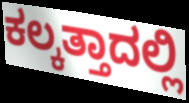
ಕಲ್ಕತ್ತಾದಲ್ಲಿ